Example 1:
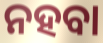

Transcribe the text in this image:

ନହବା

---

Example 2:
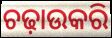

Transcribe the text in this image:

ଚଢ଼ାଉକରି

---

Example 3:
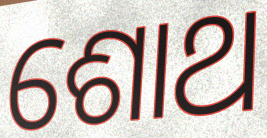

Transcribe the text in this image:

ଶୋଥ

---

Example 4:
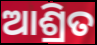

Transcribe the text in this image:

ଆଶ୍ରିତ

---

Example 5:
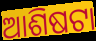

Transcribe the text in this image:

ଆଶିଷଟା